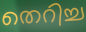
തെറിച്ച